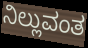
ನಿಲ್ಲುವಂತ